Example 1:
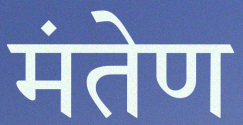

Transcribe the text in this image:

मंतेण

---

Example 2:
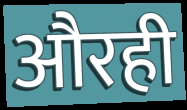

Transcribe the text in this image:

औरही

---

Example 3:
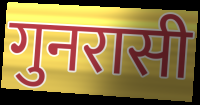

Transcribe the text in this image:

गुनरासी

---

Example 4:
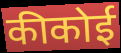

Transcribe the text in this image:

कीकोई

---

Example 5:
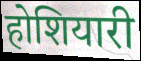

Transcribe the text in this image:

होशियारी